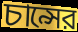
চান্সের